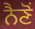
ਨੈਣੋਂ